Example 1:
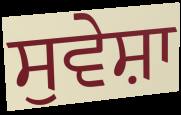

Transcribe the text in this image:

ਸੁਵੇਸ਼ਾ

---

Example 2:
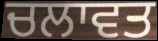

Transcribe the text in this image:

ਚਲਾਵਤ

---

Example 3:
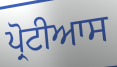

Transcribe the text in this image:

ਪ੍ਰੋਟੀਆਸ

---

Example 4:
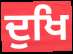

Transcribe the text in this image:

ਦੁਖਿ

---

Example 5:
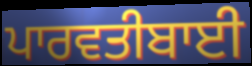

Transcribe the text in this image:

ਪਾਰਵਤੀਬਾਈ